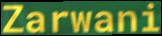
Zarwani